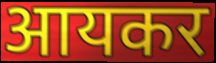
आयकर